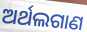
ଅର୍ଥଲଗାଣ